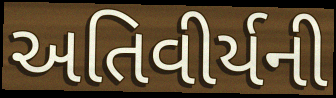
અતિવીર્યની